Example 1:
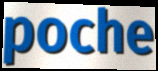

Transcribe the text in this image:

poche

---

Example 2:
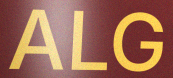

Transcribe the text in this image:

ALG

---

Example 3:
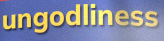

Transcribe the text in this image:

ungodliness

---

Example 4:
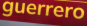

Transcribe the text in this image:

guerrero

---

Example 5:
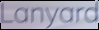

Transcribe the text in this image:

Lanyard